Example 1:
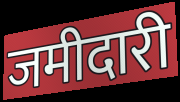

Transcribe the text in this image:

जमीदारी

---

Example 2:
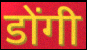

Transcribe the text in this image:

डोंगी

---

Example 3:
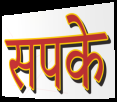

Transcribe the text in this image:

सपके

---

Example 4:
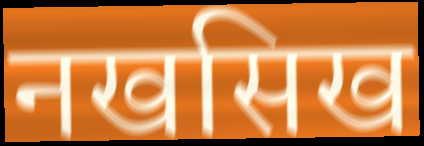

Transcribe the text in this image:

नखसिख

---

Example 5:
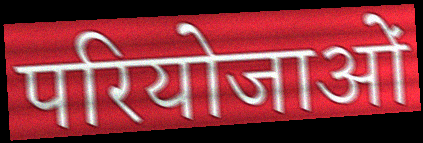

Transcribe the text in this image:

परियोजाओं